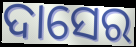
ଦାସେର